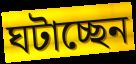
ঘটাচ্ছেন